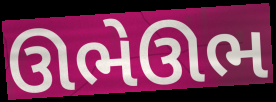
ઊભેઊભ